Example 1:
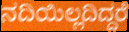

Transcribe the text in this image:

ನದಿಯಿಲ್ಲದಿದ್ದರೆ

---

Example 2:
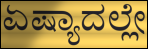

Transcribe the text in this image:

ಏಷ್ಯಾದಲ್ಲೇ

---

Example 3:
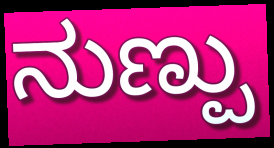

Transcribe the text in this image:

ನುಣ್ಪು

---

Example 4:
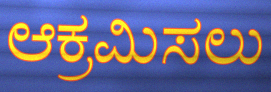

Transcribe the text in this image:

ಆಕ್ರಮಿಸಲು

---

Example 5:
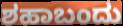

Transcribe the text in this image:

ಶಹಾಬಂದು